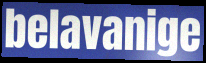
belavanige